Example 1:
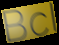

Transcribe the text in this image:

Bcl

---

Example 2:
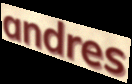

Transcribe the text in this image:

andres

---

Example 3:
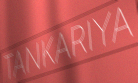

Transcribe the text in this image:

TANKARIYA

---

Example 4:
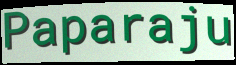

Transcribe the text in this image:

Paparaju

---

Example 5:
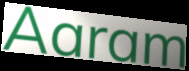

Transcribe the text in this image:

Aaram